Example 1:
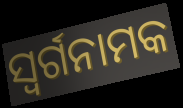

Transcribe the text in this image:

ସ୍ଵର୍ଗନାମକ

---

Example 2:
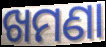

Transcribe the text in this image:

ଖମଣା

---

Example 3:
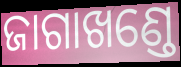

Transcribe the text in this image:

ଜାଗାଖଣ୍ଡେ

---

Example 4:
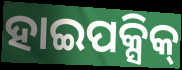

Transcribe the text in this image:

ହାଇପକ୍ସିକ୍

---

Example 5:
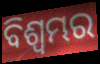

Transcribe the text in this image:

ବିଶ୍ବମ୍ଭର